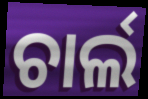
ଚାର୍ଲ